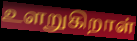
உளறுகிறாள்